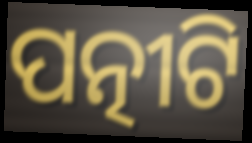
ପତ୍ନୀଟି